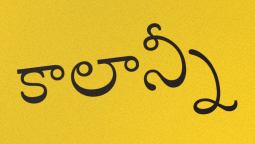
కాలాన్నీ